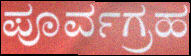
ಪೂರ್ವಗ್ರಹ